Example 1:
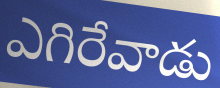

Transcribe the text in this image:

ఎగిరేవాడు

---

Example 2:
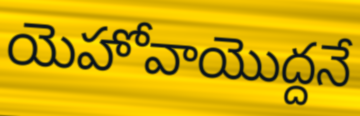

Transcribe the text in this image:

యెహోవాయొద్దనే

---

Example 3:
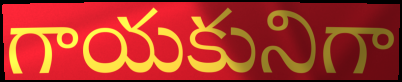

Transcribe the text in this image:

గాయకునిగా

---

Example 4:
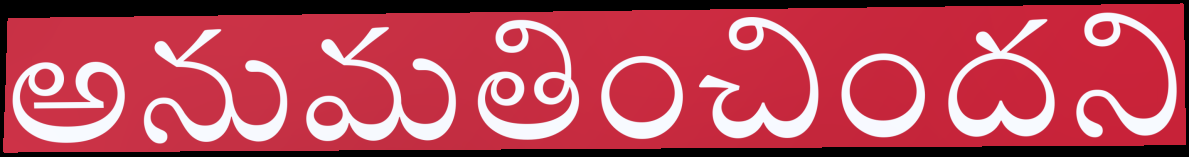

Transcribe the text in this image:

అనుమతించిందని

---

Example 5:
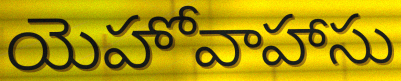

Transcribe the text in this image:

యెహోవాహాసు